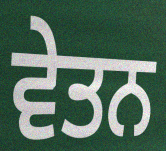
ਵੇਤਨ